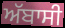
ਅੱਬਾਸੀ